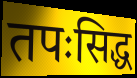
तपःसिद्ध